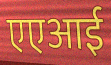
एएआई